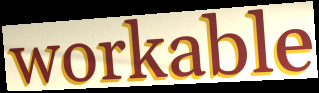
workable